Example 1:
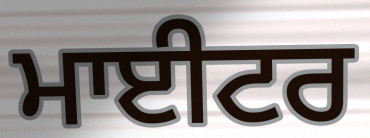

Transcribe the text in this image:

ਮਾਈਟਰ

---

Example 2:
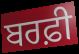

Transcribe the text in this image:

ਬਰਫ਼ੀ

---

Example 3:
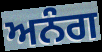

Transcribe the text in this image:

ਅਨੰਗ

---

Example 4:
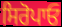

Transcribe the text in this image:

ਸਿਰੋਪਾਓ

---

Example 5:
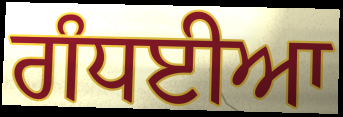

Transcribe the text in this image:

ਗੰਧਈਆ